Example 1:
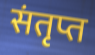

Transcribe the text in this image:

संतृप्त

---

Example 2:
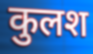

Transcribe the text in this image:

कुलश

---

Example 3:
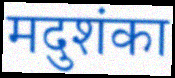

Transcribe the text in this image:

मदुशंका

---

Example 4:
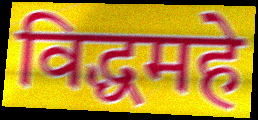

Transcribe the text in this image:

विद्धमहे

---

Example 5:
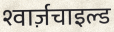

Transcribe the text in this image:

श्वार्ज़चाइल्ड